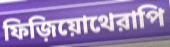
ফিজ়িয়োথেরাপি